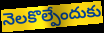
నెలకొల్పేందుకు